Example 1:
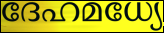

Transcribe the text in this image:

ദേഹമധ്യേ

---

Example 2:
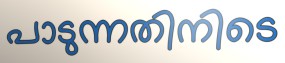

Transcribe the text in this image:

പാടുന്നതിനിടെ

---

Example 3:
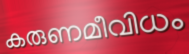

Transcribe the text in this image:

കരുണമീവിധം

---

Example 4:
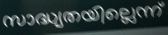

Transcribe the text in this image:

സാദ്ധ്യതയില്ലെന്ന്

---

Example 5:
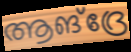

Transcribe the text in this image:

ആങ്ദ്രേ